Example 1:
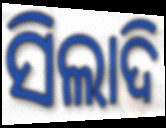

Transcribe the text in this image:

ସିଲାଦି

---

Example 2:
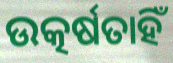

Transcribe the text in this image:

ଉତ୍କର୍ଷତାହିଁ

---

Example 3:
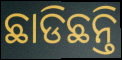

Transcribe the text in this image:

ଛାଡିଛନ୍ତି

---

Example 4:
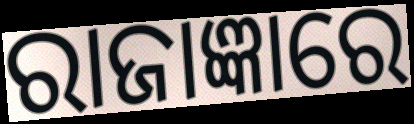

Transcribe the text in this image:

ରାଜାଜ୍ଞାରେ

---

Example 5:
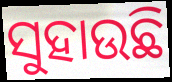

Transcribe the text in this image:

ସୁହାଉଛି